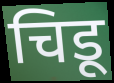
चिडू